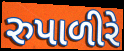
રુપાળીરે